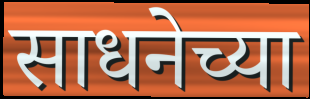
साधनेच्या